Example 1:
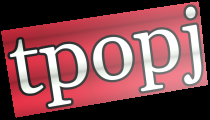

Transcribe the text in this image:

tpopj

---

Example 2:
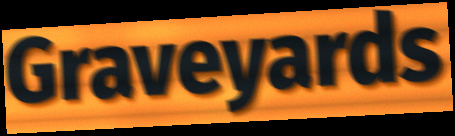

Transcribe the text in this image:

Graveyards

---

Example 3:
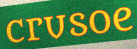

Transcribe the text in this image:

crusoe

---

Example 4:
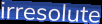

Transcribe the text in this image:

irresolute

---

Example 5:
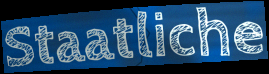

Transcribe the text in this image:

Staatliche